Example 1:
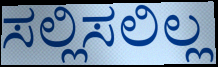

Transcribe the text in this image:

ಸಲ್ಲಿಸಲಿಲ್ಲ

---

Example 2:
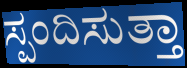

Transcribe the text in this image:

ಸ್ಪಂದಿಸುತ್ತಾ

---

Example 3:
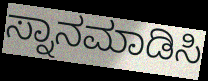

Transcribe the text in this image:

ಸ್ನಾನಮಾಡಿಸಿ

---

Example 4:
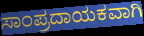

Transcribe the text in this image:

ಸಾಂಪ್ರದಾಯಕವಾಗಿ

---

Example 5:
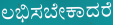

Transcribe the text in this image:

ಲಭಿಸಬೇಕಾದರೆ